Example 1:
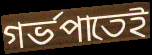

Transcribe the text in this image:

গৰ্ভপাতেই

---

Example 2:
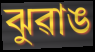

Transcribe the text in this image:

ঝুৱাঙ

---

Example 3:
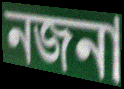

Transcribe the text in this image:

নজনা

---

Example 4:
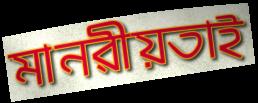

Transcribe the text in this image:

মানৱীয়তাই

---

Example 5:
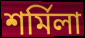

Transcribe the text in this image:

শৰ্মিলা